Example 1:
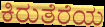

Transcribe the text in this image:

ಕಿರುತೆರೆಯ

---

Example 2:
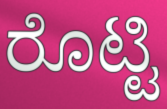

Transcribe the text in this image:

ರೊಟ್ಟಿ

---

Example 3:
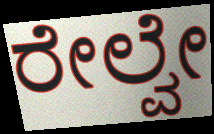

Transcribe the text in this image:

ರೇಲ್ವೇ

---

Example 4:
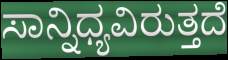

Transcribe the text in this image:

ಸಾನ್ನಿಧ್ಯವಿರುತ್ತದೆ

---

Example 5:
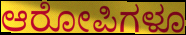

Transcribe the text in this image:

ಆರೋಪಿಗಳೂ